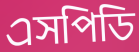
এসপিডি